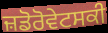
ਜ਼ਡੋਰੋਵੇਟਸਕੀ